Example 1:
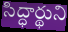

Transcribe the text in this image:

సిద్ధార్థుని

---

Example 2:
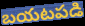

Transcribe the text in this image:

బయటపడి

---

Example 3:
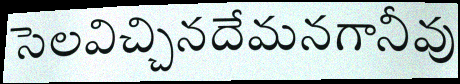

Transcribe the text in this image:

సెలవిచ్చినదేమనగానీవు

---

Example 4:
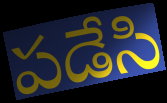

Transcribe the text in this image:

పడేసి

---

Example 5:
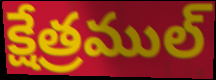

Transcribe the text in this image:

క్షేత్రముల్